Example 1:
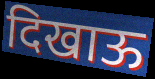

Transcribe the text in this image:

दिखाऊ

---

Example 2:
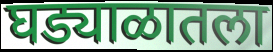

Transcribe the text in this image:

घड्याळातला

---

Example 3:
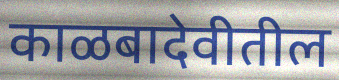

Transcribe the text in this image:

काळबादेवीतील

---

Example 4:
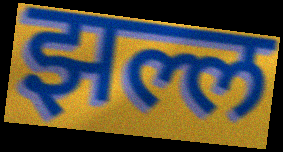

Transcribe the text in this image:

झल्ल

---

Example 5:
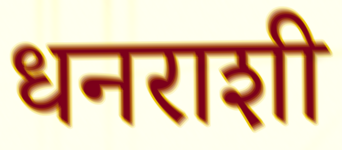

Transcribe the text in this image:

धनराशी